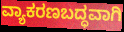
ವ್ಯಾಕರಣಬದ್ಧವಾಗಿ